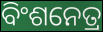
ବିଂଶନେତ୍ର